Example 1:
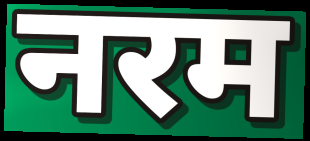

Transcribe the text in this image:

नरम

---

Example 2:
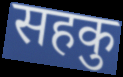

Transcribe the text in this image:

सहकु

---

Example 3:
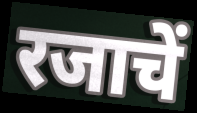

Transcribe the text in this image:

रजाचें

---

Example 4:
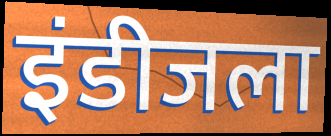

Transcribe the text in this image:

इंडीजला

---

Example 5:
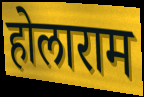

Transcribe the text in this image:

होलाराम